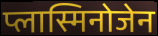
प्लास्मिनोजेन